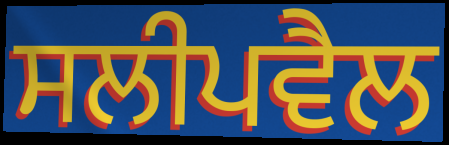
ਸਲੀਪਵੈਲ